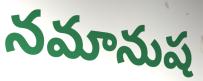
నమానుష